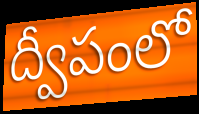
ద్వీపంలో